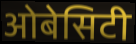
ओबेसिटी